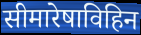
सीमारेषाविहिन